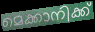
മെക്കാനിക്ക്